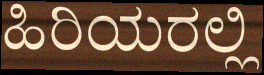
ಹಿರಿಯರಲ್ಲಿ